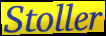
Stoller